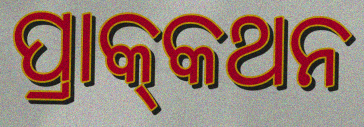
ପ୍ରାକ୍‍କଥନ